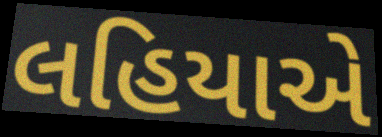
લહિયાએ